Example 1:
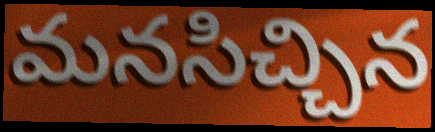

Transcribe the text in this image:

మనసిచ్చిన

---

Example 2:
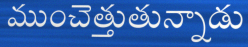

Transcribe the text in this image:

ముంచెత్తుతున్నాడు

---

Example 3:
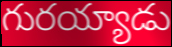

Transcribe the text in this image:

గురయ్యాడు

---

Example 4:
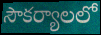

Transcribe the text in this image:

సౌకర్యాలలో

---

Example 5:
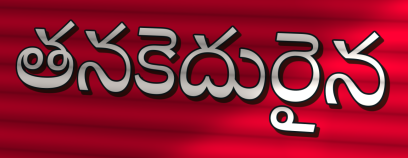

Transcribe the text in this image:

తనకెదురైన